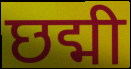
छद्मी